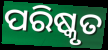
ପରିଷ୍କୃତ